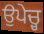
ਉਪੇਚ੍ਚ